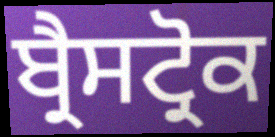
ਬ੍ਰੈਸਟ੍ਰੋਕ